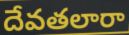
దేవతలారా